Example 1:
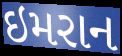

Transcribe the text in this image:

ઇમરાન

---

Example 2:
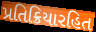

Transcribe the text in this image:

પ્રતિક્રિયારહિત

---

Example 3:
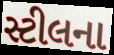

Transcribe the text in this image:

સ્ટીલના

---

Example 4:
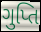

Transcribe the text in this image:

ગુપ્તિ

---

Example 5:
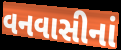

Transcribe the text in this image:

વનવાસીનાં